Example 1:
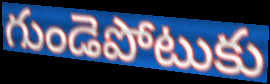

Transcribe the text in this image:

గుండెపోటుకు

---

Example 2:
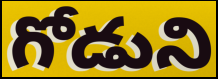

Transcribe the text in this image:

గోడుని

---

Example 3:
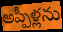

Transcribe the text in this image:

అప్పీళ్లను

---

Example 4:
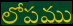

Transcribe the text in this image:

లోపము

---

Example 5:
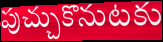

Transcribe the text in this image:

పుచ్చుకొనుటకు